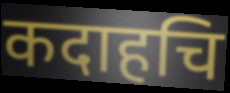
कदाहचि